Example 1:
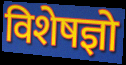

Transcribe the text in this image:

विशेषज्ञो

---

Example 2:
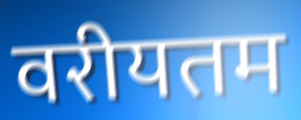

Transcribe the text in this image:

वरीयतम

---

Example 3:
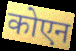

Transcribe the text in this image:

कोएन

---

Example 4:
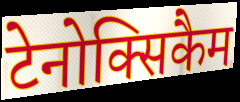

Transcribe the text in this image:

टेनोक्सिकैम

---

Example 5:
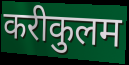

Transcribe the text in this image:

करीकुलम